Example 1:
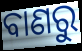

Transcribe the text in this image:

ବାଣରୁ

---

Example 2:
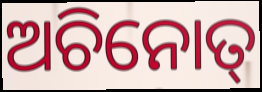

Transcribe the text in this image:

ଅଚିନୋତ୍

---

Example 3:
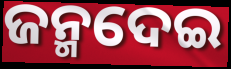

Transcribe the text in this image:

ଜନ୍ମଦେଇ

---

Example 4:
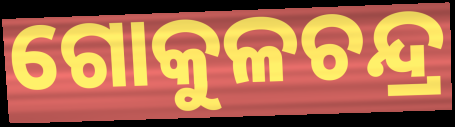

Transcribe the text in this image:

ଗୋକୁଳଚନ୍ଦ୍ର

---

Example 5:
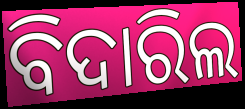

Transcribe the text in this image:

ବିଦାରିଲ